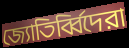
জ্যোতির্ব্বিদেরা